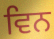
ਵਿਨ